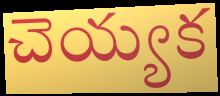
చెయ్యక